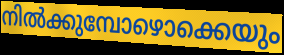
നിൽക്കുമ്പോഴൊക്കെയും